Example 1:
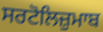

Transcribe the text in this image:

ਸਰਟੋਲਿਜ਼ੁਮਾਬ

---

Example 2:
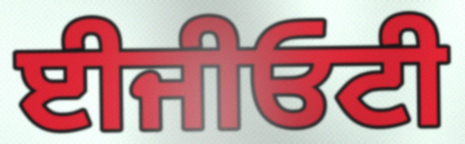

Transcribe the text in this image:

ਈਜੀਓਟੀ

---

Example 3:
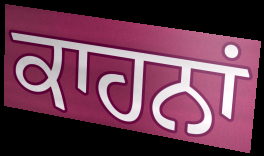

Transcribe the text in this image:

ਕਾਹਨਾਂ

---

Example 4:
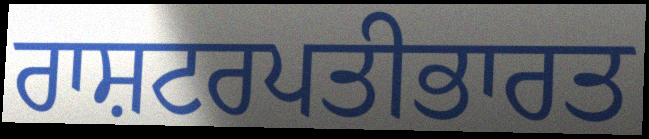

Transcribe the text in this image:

ਰਾਸ਼ਟਰਪਤੀਭਾਰਤ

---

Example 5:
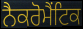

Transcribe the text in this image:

ਨੈਕਰੋਮੈਂਟਿਕ